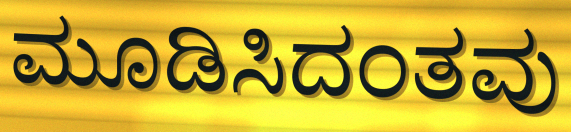
ಮೂಡಿಸಿದಂತವು